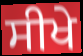
ਸੀਖੇ